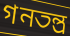
গনতন্ত্র